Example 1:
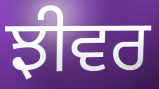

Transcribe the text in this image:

ਝੀਵਰ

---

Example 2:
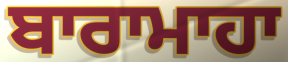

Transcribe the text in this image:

ਬਾਰਾਮਾਹਾ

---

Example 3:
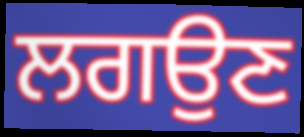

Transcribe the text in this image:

ਲਗਉਣ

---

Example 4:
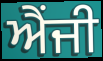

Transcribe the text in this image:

ਐਂਜੀ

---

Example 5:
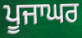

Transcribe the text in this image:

ਪੂਜਾਘਰ